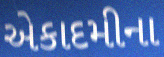
એકાદમીના